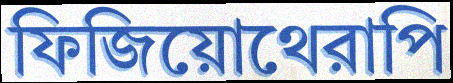
ফিজিয়োথেরাপি